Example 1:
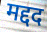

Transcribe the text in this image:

मद्दद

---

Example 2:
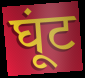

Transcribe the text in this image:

घूंट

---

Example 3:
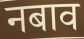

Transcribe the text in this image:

नबाव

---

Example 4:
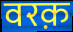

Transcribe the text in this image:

वरक़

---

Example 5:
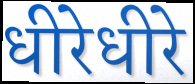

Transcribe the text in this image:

धीरेधीरे